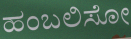
ಹಂಬಲಿಸೋ